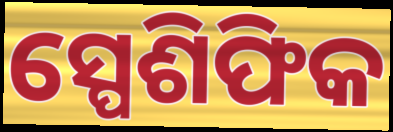
ସ୍ପେଶିଫିକ